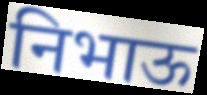
निभाऊ